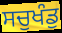
ਸਚੁਖੰਡੁ